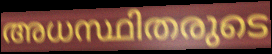
അധസ്ഥിതരുടെ